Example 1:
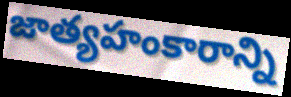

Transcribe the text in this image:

జాత్యహంకారాన్ని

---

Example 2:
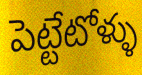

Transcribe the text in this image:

పెట్టేటోళ్ళు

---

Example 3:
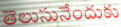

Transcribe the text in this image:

తెలుసునేందుకు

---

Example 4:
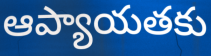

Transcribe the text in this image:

ఆప్యాయతకు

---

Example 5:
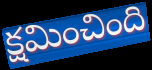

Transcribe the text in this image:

క్షమించింది